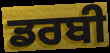
ਡਰਬੀ